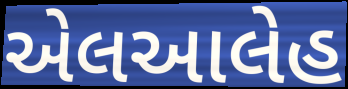
એલઆલેહ